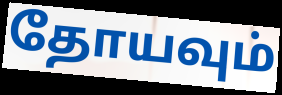
தோயவும்